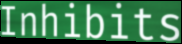
Inhibits